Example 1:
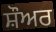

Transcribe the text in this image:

ਸ਼ੌਅਰ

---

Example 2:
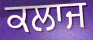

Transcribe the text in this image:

ਕਲਾਜ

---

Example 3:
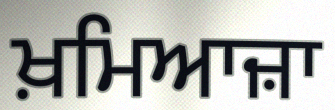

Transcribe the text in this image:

ਖ਼ਮਿਆਜ਼ਾ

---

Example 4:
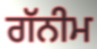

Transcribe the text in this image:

ਗੱਨੀਮ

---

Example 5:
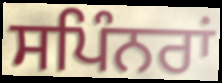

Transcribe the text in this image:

ਸਪਿੰਨਰਾਂ